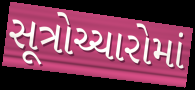
સૂત્રોચ્ચારોમાં